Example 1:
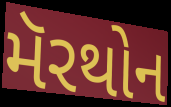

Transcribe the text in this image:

મૅરથોન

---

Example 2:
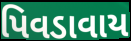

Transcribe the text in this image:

પિવડાવાય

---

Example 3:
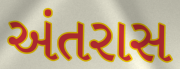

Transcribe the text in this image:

અંતરાસ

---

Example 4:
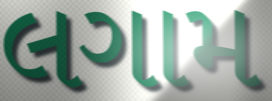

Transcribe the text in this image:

લગામ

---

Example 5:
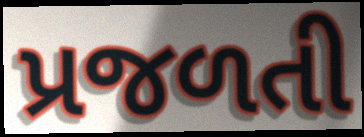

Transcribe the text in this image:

પ્રજળતી